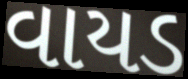
વાયડ